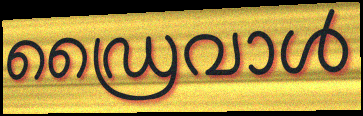
ഡ്രൈവാൾ